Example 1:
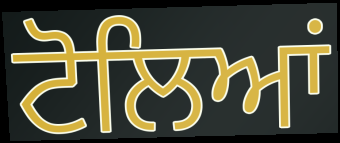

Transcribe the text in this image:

ਟੋਲਿਆਂ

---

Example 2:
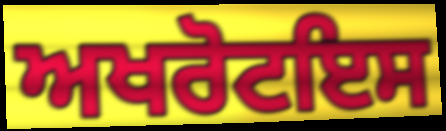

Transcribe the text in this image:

ਅਖਰੋਟਇਸ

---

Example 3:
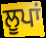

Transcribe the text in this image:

ਲੂਪਾਂ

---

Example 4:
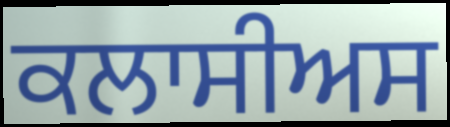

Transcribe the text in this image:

ਕਲਾਸੀਅਸ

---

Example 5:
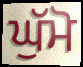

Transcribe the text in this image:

ਘੁੱਮੋ